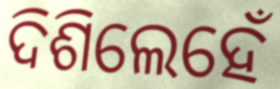
ଦିଶିଲେହେଁ